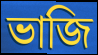
ভাজি